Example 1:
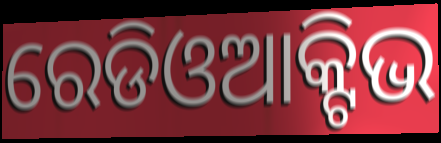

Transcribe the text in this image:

ରେଡିଓଆକ୍ଟିଭ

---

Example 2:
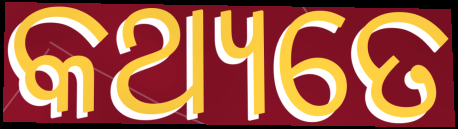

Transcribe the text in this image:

କଥ୍ୟତେ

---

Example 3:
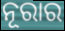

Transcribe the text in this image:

ନୂରାର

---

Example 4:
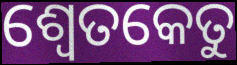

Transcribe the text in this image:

ଶ୍ୱେତକେତୁ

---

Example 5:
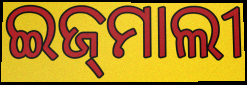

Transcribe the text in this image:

ଇଜ୍‌ମାଲୀ